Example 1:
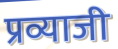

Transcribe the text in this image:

प्रव्याजी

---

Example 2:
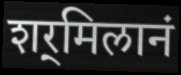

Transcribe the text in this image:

शर्मिलानं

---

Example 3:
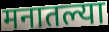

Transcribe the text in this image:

मनातल्या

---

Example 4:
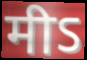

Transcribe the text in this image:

मीऽ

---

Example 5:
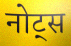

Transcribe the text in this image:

नोट्‌स